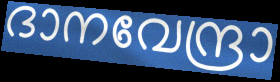
ദാനവേന്ദ്രാ